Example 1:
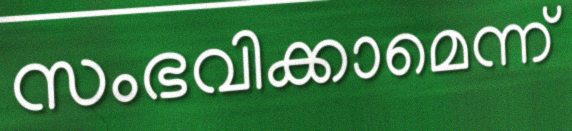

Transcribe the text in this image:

സംഭവിക്കാമെന്ന്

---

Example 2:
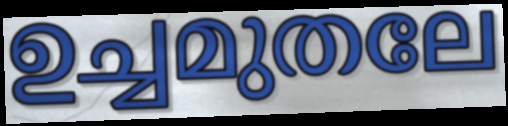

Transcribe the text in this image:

ഉച്ചമുതലേ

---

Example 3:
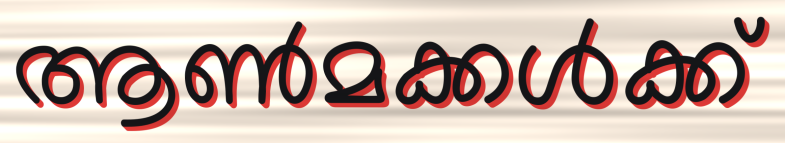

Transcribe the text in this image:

ആൺമക്കൾക്ക്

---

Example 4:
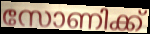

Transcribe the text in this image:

സോണിക്ക്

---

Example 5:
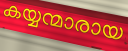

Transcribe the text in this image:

കയ്യന്മാരായ